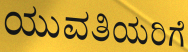
ಯುವತಿಯರಿಗೆ